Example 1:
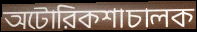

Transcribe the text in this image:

অটোরিকশাচালক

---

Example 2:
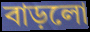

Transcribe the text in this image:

বাড়লো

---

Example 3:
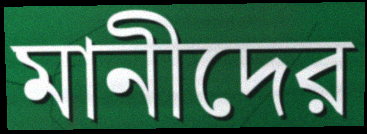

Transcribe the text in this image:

মানীদের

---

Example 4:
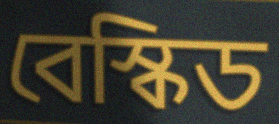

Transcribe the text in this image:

বেস্কিড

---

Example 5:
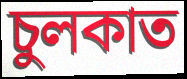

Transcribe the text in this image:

চুলকাত